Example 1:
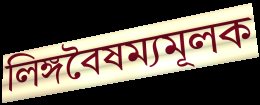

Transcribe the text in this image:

লিঙ্গবৈষম্যমূলক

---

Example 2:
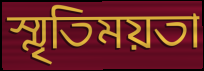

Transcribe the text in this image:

স্মৃতিময়তা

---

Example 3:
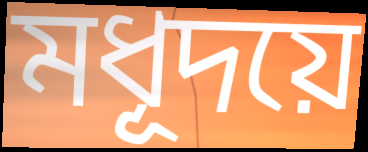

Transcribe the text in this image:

মধূদয়ে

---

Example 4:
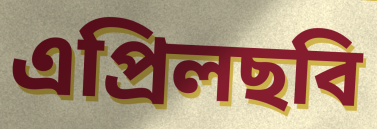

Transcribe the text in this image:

এপ্রিলছবি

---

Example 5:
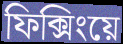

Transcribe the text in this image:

ফিক্সিংয়ে